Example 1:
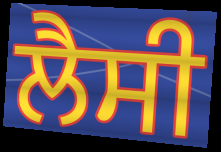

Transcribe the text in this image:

ਲੈਸੀ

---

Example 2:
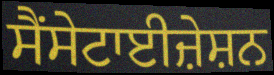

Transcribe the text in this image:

ਸੈਂਸੇਟਾਈਜ਼ੇਸ਼ਨ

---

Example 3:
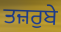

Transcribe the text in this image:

ਤਜ਼ਰੁਬੇ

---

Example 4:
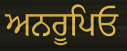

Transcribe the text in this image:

ਅਨਰੂਪਿਓ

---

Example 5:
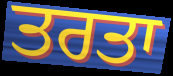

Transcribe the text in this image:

ਤਰਤਾ